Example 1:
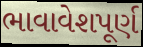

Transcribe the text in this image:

ભાવાવેશપૂર્ણ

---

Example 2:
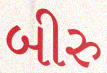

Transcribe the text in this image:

બીરુ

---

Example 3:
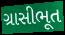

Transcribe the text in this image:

ગ્રાસીભૂત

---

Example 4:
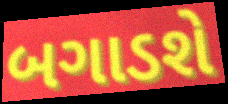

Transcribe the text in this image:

બગાડશે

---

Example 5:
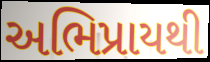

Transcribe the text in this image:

અભિપ્રાયથી